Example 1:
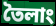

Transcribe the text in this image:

তৈলাং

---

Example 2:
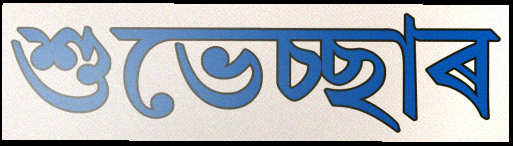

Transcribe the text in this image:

শুভেচ্ছাৰ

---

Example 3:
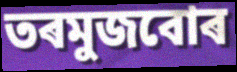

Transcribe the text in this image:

তৰমুজবোৰ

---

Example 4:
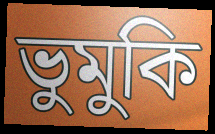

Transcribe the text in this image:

ভুমুকি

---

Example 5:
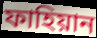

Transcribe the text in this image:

ফাহিয়ান